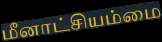
மீனாட்சியம்மை